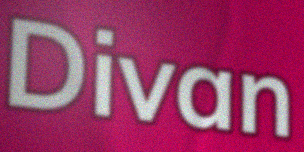
Divan